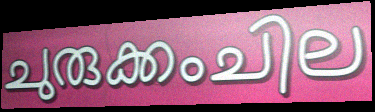
ചുരുക്കംചില